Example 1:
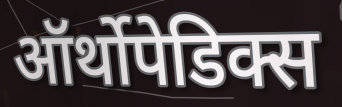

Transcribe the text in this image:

ऑर्थोपेडिक्स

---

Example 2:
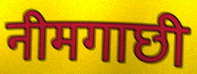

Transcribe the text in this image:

नीमगाछी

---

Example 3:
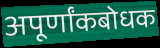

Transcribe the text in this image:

अपूर्णांकबोधक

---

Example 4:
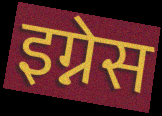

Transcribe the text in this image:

इग्नेस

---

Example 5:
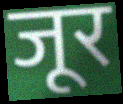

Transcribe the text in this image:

जूर